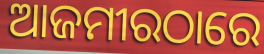
ଆଜମୀରଠାରେ